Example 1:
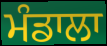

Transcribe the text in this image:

ਮੰਡਾਲਾ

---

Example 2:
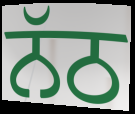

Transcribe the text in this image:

ਨੱਠ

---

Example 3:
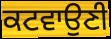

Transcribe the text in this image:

ਕਟਵਾਉਣੀ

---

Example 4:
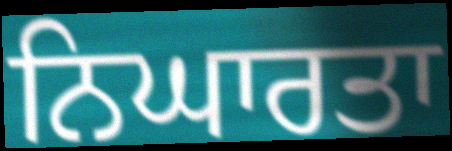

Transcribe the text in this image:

ਨਿਘਾਰਤਾ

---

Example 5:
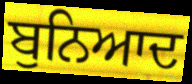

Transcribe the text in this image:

ਬੁਨਿਆਦ